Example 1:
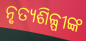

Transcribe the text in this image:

ନୃତ୍ୟଶିଳ୍ପୀଙ୍କ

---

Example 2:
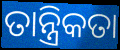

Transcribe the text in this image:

ତାନ୍ତ୍ରିକତା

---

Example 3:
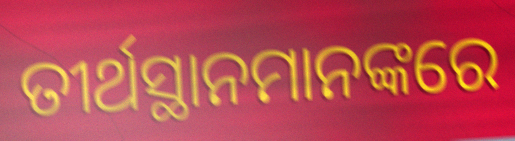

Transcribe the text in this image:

ତୀର୍ଥସ୍ଥାନମାନଙ୍କରେ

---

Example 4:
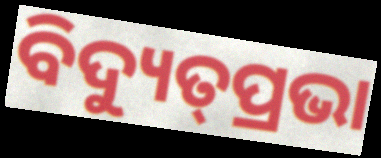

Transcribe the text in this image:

ବିଦ୍ୟୁତ୍‌ପ୍ରଭା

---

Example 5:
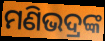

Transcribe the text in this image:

ମଣିଭଦ୍ରଙ୍କ